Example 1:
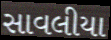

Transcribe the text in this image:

સાવલીયા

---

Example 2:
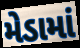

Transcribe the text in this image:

મેડામાં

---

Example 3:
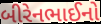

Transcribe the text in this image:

બીરેનભાઈનો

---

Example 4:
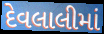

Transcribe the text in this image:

દેવલાલીમાં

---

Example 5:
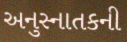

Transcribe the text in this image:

અનુસ્નાતકની